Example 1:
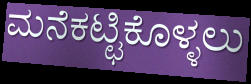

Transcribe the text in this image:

ಮನೆಕಟ್ಟಿಕೊಳ್ಳಲು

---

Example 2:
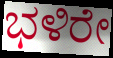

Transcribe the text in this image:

ಭಳಿರೇ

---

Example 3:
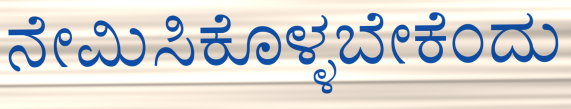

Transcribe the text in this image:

ನೇಮಿಸಿಕೊಳ್ಳಬೇಕೆಂದು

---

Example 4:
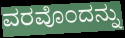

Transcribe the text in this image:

ವರವೊಂದನ್ನು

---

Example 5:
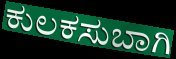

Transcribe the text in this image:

ಕುಲಕಸುಬಾಗಿ